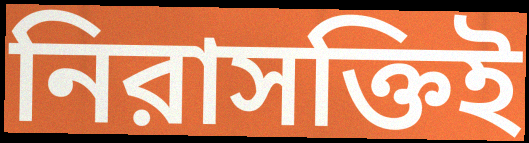
নিরাসক্তিই